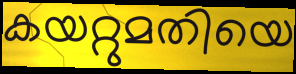
കയറ്റുമതിയെ